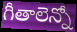
గీతాలెన్నో